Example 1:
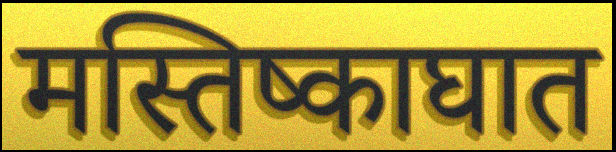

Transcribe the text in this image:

मस्तिष्काघात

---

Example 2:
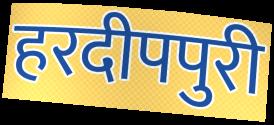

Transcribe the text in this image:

हरदीपपुरी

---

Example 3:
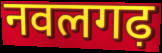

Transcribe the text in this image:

नवलगढ़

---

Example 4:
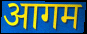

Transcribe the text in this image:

आगम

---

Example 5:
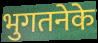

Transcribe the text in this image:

भुगतनेके